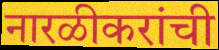
नारळीकरांची